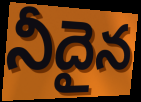
నీదైన